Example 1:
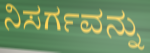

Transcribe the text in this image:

ನಿಸರ್ಗವನ್ನು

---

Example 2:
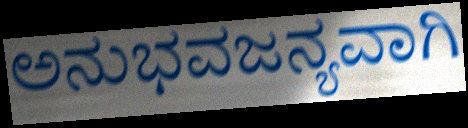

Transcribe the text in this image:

ಅನುಭವಜನ್ಯವಾಗಿ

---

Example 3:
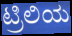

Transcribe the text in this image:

ಟ್ರಿಲಿಯ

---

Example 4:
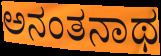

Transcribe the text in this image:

ಅನಂತನಾಥ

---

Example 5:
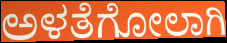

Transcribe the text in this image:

ಅಳತೆಗೋಲಾಗಿ